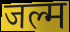
जल्म